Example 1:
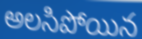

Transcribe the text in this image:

అలసిపోయిన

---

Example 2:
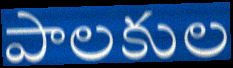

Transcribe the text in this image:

పాలకుల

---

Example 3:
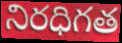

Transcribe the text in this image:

నిరధిగత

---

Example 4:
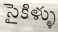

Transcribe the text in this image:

సైకిళ్ళు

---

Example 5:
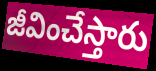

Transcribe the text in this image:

జీవించేస్తారు